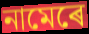
নামেৰে